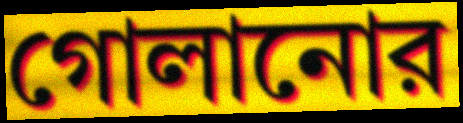
গোলানোর